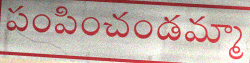
పంపించండమ్మా